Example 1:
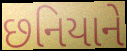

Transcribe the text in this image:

છનિયાને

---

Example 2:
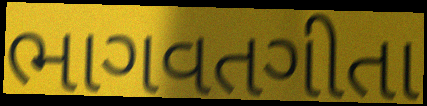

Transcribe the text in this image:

ભાગવતગીતા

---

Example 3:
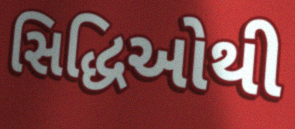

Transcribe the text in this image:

સિદ્ધિઓથી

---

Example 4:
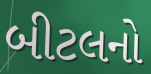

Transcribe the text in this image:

બીટલનો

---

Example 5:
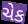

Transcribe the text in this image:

ચેક